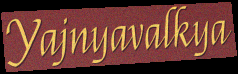
Yajnyavalkya